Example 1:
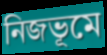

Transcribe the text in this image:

নিজভূমে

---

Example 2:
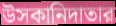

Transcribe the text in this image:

উসকানিদাতার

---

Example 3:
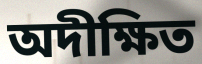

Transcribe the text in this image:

অদীক্ষিত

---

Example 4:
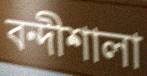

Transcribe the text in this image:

বন্দীশালা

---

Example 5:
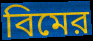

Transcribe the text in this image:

বিমের